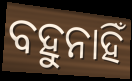
ବହୁନାହିଁ